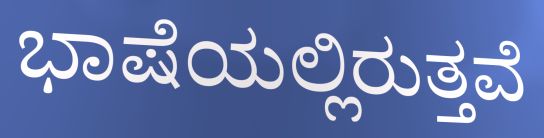
ಭಾಷೆಯಲ್ಲಿರುತ್ತವೆ